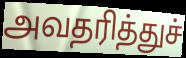
அவதரித்துச்